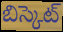
బిస్కెట్